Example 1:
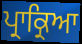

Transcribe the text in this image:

ਪ੍ਰਾਕ੍ਰਿਆ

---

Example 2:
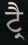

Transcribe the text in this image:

ਟ੍ਰੈ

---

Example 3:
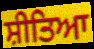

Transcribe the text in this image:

ਸ਼ੀਤਿਆ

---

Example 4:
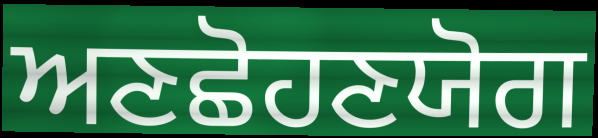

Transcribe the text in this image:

ਅਣਛੋਹਣਯੋਗ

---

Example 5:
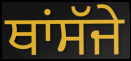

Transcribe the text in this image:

ਥਾਂਸੱਜੇ